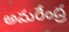
అమరేంద్ర